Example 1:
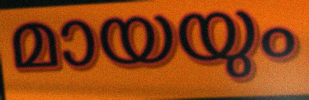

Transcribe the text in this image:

മായയും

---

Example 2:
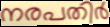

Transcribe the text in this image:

നരപതിർ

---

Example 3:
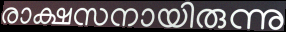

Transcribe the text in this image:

രാക്ഷസനായിരുന്നു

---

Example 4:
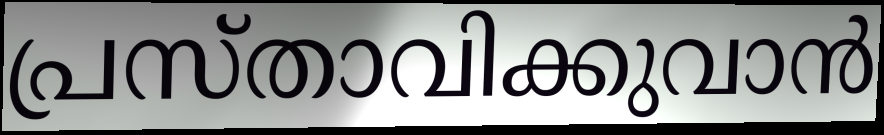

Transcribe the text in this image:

പ്രസ്താവിക്കുവാൻ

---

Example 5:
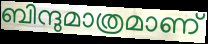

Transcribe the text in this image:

ബിന്ദുമാത്രമാണ്